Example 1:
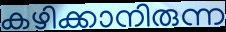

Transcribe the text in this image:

കഴിക്കാനിരുന്ന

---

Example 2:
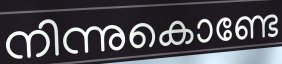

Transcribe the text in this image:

നിന്നുകൊണ്ടേ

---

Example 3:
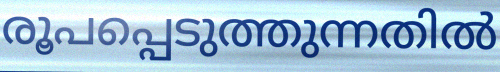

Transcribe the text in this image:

രൂപപ്പെടുത്തുന്നതിൽ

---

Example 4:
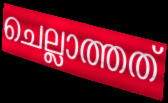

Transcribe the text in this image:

ചെല്ലാത്തത്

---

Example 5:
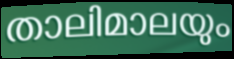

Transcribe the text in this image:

താലിമാലയും